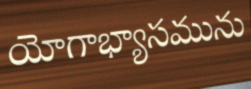
యోగాభ్యాసమును